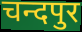
चन्दपुर